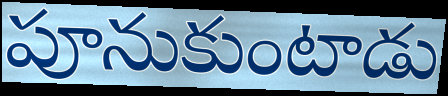
పూనుకుంటాడు